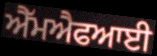
ਐੱਮਐਫਆਈ